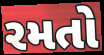
રમતો